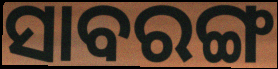
ସାବରଙ୍ଗ